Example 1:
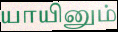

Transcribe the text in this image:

யாயினும்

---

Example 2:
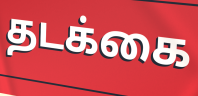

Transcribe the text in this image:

தடக்கை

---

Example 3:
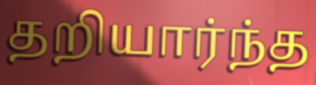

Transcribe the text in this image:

தறியார்ந்த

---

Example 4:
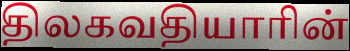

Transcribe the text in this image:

திலகவதியாரின்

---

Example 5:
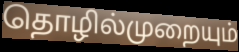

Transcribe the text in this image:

தொழில்முறையும்